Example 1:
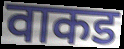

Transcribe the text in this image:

वाकड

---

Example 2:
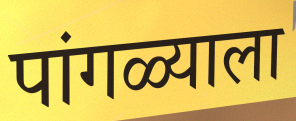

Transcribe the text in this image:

पांगळ्याला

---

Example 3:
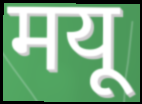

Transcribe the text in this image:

मयू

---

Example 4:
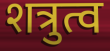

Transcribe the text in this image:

शत्रुत्व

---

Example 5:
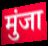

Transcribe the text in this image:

मुंजा